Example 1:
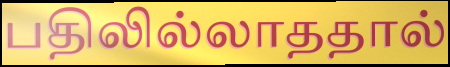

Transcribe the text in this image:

பதிலில்லாததால்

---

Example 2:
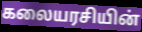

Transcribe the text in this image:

கலையரசியின்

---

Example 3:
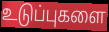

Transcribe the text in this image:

உடுப்புகளை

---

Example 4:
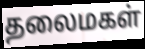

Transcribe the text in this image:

தலைமகள்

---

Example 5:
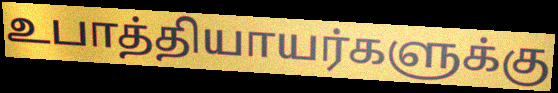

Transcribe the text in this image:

உபாத்தியாயர்களுக்கு